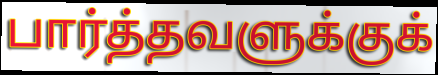
பார்த்தவளுக்குக்